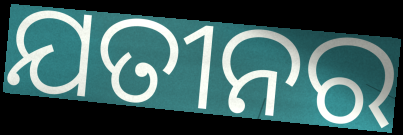
ଯତୀନର